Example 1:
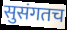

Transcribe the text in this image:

सुसंगतच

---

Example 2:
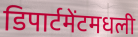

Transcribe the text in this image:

डिपार्टमेंटमधली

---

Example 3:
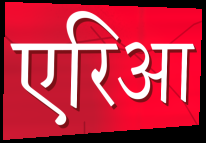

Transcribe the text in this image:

एरिआ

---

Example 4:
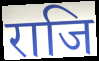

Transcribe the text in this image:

राजि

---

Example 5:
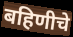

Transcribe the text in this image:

बहिणीचे